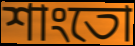
শাংতো